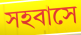
সহবাসে